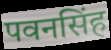
पवनसिंह